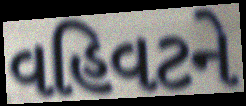
વહિવટને